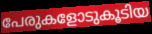
പേരുകളോടുകൂടിയ